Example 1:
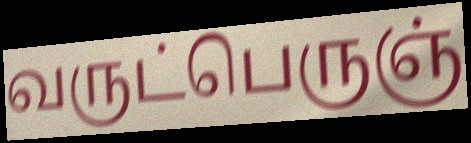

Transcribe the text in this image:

வருட்பெருஞ்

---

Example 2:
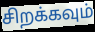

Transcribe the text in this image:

சிறக்கவும்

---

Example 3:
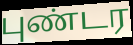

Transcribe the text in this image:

புண்டர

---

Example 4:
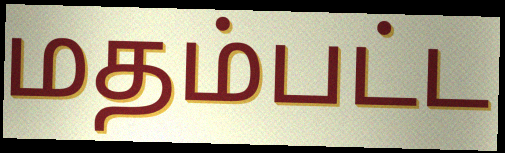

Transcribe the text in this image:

மதம்பட்ட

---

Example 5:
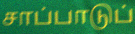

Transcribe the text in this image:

சாப்பாடுப்